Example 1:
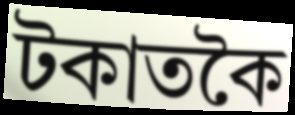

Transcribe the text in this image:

টকাতকৈ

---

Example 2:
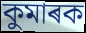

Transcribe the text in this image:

কুমাৰক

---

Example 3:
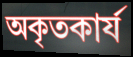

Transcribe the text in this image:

অকৃতকাৰ্য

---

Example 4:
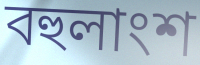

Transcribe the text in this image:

বহুলাংশ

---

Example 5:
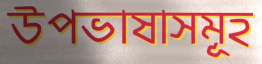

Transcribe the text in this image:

উপভাষাসমূহ